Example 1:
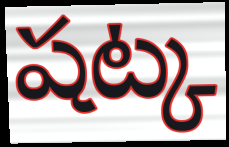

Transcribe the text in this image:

షట్క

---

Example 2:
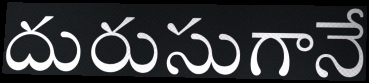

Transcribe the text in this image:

దురుసుగానే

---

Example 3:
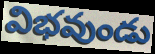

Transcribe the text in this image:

విభవుండు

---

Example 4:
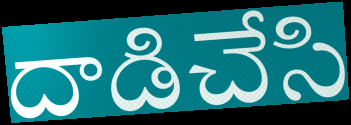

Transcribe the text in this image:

దాడిచేసి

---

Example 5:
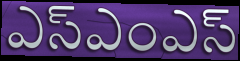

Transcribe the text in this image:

ఎస్ఎంఎస్